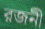
রজনী